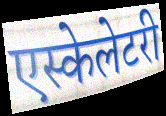
एस्केलेटरी